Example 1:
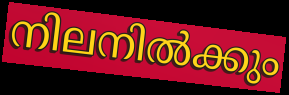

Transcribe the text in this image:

നിലനിൽക്കും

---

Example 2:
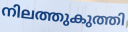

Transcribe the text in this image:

നിലത്തുകുത്തി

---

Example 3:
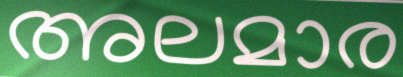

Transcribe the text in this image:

അലമാര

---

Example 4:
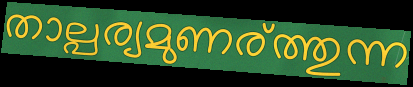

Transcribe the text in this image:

താല്പര്യമുണര്ത്തുന്ന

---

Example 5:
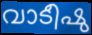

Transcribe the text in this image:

വാടീഷു